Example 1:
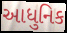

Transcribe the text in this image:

આધુનિક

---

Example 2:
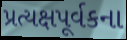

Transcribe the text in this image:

પ્રત્યક્ષપૂર્વકના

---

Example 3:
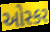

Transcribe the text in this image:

ઓસ્કર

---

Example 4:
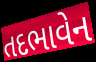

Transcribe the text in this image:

તદભાવેન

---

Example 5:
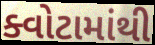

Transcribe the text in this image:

ક્વોટામાંથી